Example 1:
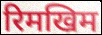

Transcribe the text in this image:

रिमखिम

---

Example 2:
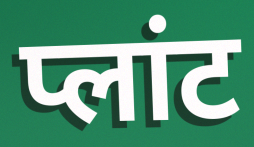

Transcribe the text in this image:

प्लांट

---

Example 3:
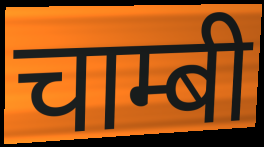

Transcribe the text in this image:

चाम्बी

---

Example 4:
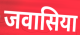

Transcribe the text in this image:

जवासिया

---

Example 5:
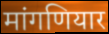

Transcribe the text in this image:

मांगणियार